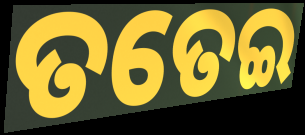
ତତେଇ